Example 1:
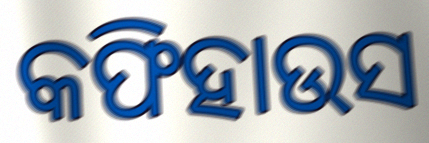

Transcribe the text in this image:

କଫିହାଉସ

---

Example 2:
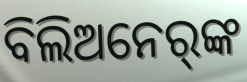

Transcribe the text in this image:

ବିଲିଅନେର୍‌ଙ୍କ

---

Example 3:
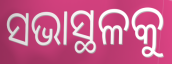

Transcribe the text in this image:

ସଭାସ୍ଥଳକୁ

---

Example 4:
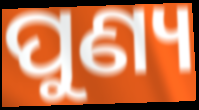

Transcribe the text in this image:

ପୁଣ୍ୟ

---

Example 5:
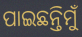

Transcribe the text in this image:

ପାଇଛନ୍ତିମୁଁ